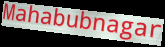
Mahabubnagar